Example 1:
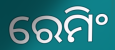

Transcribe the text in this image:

ରେମିଂ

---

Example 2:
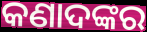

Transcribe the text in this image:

କଣାଦଙ୍କର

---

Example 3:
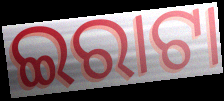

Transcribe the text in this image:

ଇରାଟା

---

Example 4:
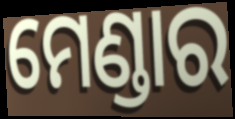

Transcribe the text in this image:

ମେଣ୍ଡାର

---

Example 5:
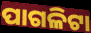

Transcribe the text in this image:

ପାଗଳିଟା